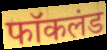
फॉकलंड